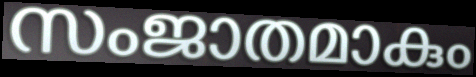
സംജാതമാകും